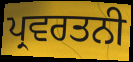
ਪ੍ਰਵਰਤਨੀ